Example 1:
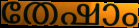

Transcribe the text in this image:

തേഷാം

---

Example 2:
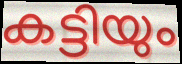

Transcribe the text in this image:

കട്ടിയും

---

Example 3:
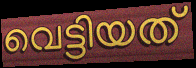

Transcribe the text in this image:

വെട്ടിയത്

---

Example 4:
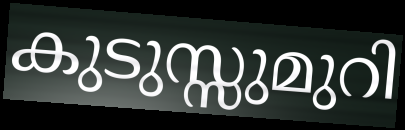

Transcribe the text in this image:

കുടുസ്സുമുറി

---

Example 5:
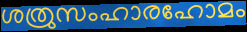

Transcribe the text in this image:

ശത്രുസംഹാരഹോമം